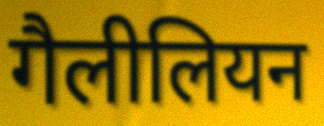
गैलीलियन